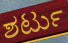
ಶರ್ಟು